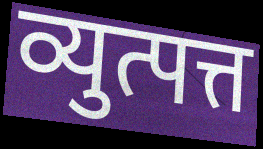
व्युत्पत्त